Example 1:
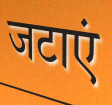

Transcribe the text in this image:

जटाएं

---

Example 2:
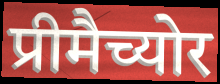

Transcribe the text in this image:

प्रीमैच्योर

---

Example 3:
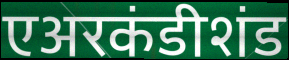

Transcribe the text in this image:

एअरकंडीशंड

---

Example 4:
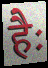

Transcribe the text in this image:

हैः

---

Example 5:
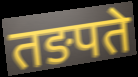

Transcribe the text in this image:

तङपते